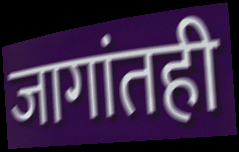
जागांतही